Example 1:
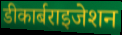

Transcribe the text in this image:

डीकार्बराइजेशन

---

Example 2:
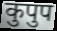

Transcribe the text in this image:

कुपुप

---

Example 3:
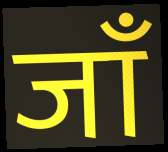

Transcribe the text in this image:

जाँ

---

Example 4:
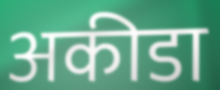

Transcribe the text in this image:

अकीडा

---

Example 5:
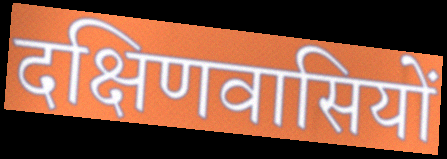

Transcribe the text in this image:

दक्षिणवासियों